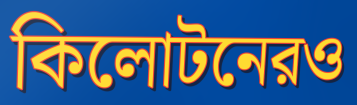
কিলোটনেরও